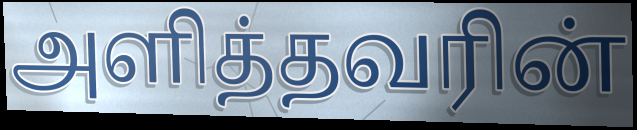
அளித்தவரின்